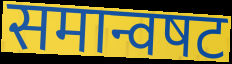
समान्वषट